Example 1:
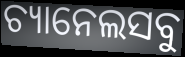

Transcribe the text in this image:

ଚ୍ୟାନେଲସବୁ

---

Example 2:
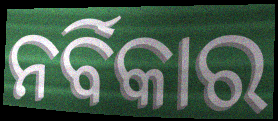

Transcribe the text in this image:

ନର୍ବିକାର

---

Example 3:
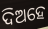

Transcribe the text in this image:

ଦିଅହେ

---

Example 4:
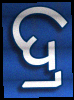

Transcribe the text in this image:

ଦ୍ର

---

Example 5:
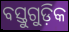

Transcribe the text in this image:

ବସ୍ତୁଗୁଡ଼ିକ